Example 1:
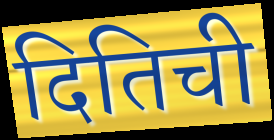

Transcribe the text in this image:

दितिची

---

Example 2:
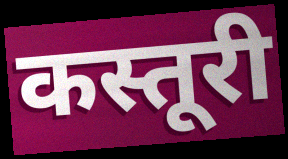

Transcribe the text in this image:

कस्तूरी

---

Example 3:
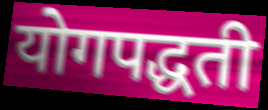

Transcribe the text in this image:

योगपद्धती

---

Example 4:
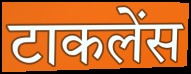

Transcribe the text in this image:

टाकलेंस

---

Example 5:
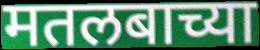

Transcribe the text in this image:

मतलबाच्या